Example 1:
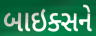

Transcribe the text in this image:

બાઇક્સને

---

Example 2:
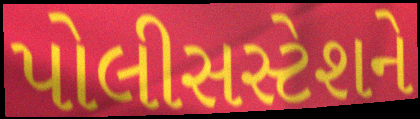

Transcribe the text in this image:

પોલીસસ્ટેશને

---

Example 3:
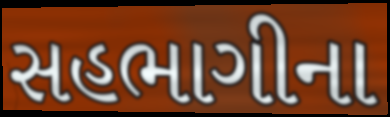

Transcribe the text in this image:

સહભાગીના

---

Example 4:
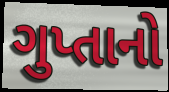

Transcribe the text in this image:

ગુપ્તાનો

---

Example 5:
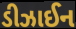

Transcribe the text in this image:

ડીઝાઈન